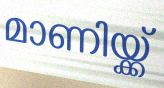
മാണിയ്ക്ക്